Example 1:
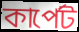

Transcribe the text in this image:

কাৰ্পেট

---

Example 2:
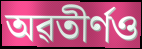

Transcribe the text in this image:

অৱতীৰ্ণও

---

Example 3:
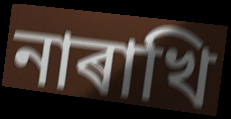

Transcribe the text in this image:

নাৰাখি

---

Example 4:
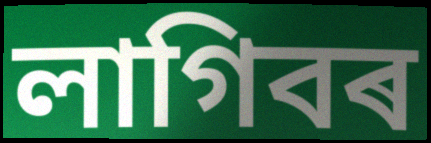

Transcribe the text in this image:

লাগিবৰ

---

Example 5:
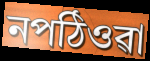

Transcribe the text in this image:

নপঠিওৱা